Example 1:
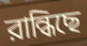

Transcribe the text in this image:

রান্ধিছে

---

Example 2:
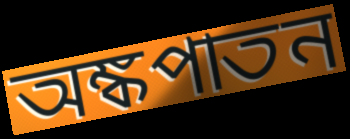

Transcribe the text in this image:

অঙ্কপাতন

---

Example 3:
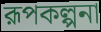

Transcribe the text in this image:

রূপকল্পনা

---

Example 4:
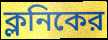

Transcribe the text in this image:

ক্লনিকের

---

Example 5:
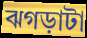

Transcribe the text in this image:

ঝগড়াটা